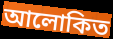
আলোকিত